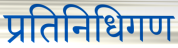
प्रतिनिधिगण